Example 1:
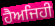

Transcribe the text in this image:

ਹੈਅਜਿਹੀ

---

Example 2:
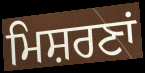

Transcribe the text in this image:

ਮਿਸ਼ਰਣਾਂ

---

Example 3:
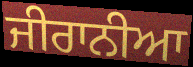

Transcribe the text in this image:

ਜੀਰਾਨੀਆ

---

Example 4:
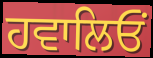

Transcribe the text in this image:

ਹਵਾਲਿਓਂ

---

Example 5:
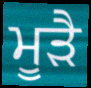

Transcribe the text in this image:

ਮੂੜੈ